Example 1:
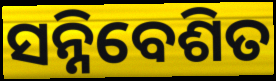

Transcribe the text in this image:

ସନ୍ନିବେଶିତ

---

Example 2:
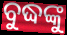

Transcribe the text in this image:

ବୁଦ୍ଧଙ୍କୁ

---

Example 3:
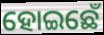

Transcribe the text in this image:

ହୋଇଛେଁ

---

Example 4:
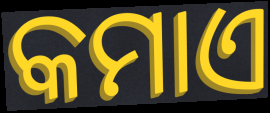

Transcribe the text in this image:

କମାଏ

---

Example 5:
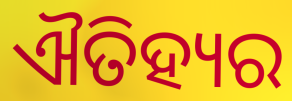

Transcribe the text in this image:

ଐତିହ୍ୟର